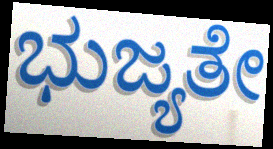
ಭುಜ್ಯತೇ